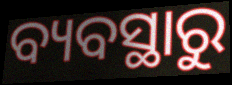
ବ୍ୟବସ୍ଥାରୁ